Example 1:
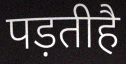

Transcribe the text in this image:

पड़तीहै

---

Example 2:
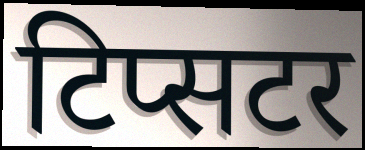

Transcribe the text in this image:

टिप्सटर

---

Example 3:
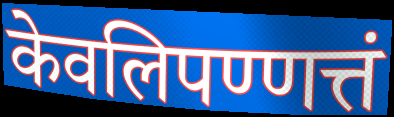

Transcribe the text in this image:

केवलिपण्णत्तं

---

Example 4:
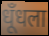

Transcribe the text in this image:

धूँधला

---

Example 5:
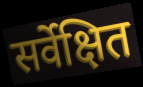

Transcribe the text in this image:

सर्वेक्षित